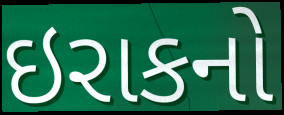
ઇરાકનો